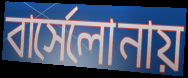
বার্সেলোনায়